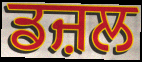
ਡਜ਼ਲ